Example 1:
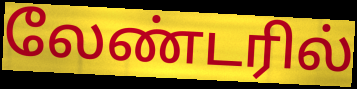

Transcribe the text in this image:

லேண்டரில்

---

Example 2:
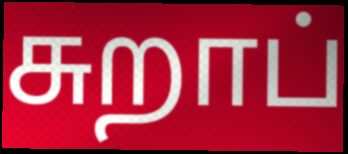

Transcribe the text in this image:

சுறாப்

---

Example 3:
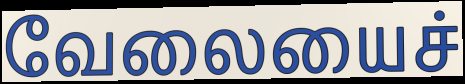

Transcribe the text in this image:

வேலையைச்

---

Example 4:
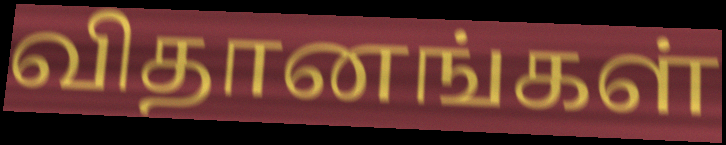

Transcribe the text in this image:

விதானங்கள்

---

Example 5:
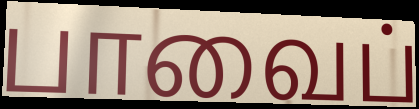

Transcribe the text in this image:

பாவைப்